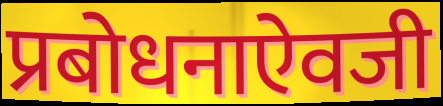
प्रबोधनाऐवजी